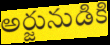
అర్జునుడికి